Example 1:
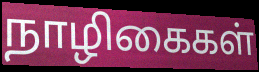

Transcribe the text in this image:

நாழிகைகள்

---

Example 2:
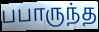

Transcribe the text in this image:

பபாருந்த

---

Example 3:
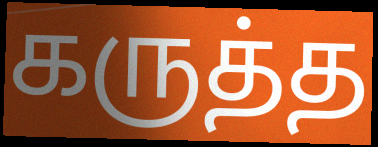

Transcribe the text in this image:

கருத்த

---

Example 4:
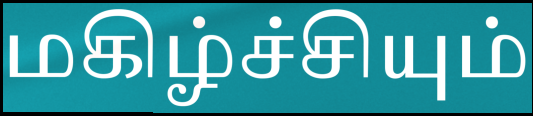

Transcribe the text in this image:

மகிழ்ச்சியும்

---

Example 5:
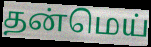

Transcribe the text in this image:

தன்மெய்